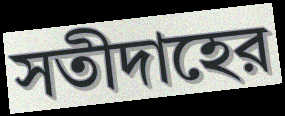
সতীদাহের